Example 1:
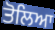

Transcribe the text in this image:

ਤੋਲਿਆ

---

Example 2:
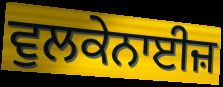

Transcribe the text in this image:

ਵੁਲਕੇਨਾਈਜ਼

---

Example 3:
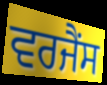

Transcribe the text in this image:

ਵਰਜੈਂਸ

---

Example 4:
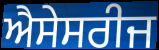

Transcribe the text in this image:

ਐਸੇਸਰੀਜ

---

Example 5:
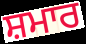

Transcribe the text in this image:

ਸ਼ਮਾਰ